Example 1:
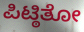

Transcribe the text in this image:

ಪಿಟ್ಠಿತೋ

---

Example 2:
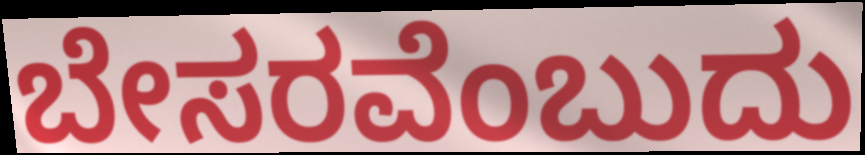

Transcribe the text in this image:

ಬೇಸರವೆಂಬುದು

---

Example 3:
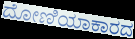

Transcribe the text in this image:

ದೋಣಿಯಾಕಾರದ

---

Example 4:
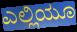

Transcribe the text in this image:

ಎಲ್ಲಿಯೂ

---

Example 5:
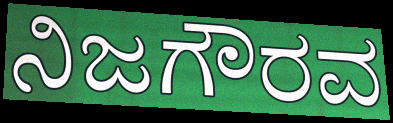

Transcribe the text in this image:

ನಿಜಗೌರವ